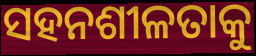
ସହନଶୀଳତାକୁ